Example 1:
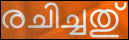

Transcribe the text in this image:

രചിച്ചതു്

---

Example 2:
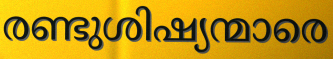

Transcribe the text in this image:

രണ്ടുശിഷ്യന്മാരെ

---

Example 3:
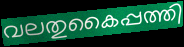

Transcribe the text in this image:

വലതുകൈപ്പത്തി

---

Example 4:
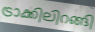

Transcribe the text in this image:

ട്രാക്കിലിറങ്ങി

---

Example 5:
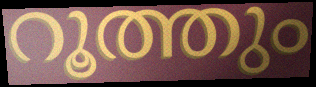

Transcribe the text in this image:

റൂത്തും